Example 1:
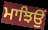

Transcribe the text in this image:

ਮਾਝਿਉਂ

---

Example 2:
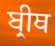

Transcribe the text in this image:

ਬ੍ਰੀਥ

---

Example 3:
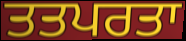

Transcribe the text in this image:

ਤਤਪਰਤਾ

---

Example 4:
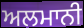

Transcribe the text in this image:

ਅਲਮਾਨੀ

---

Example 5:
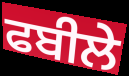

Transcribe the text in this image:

ਫਬੀਲੇ